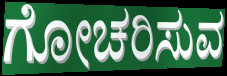
ಗೋಚರಿಸುವ